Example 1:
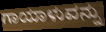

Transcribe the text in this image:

ಗಾಯಾಳುವನ್ನು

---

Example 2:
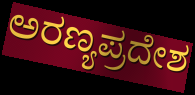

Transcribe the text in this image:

ಅರಣ್ಯಪ್ರದೇಶ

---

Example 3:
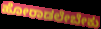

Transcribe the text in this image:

ಹೋರಾಡಲೇಬೇಕು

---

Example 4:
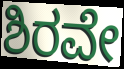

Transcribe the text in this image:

ಶಿರವೇ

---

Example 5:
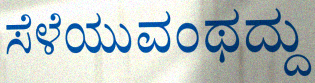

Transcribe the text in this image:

ಸೆಳೆಯುವಂಥದ್ದು